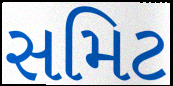
સમિટ